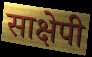
साक्षेपी